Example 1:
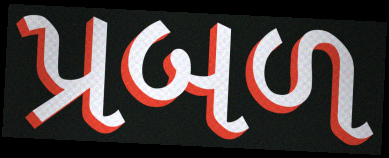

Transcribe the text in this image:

પ્રબળ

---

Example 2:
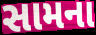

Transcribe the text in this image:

સામના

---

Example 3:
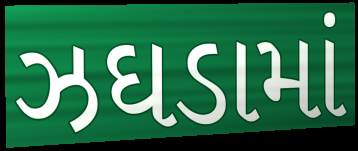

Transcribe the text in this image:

ઝઘડામાં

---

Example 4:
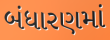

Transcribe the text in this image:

બંધારણમાં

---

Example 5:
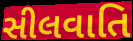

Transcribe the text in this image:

સીલવાતિ